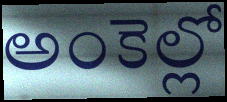
అంకెల్లో